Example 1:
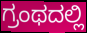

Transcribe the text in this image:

ಗ್ರಂಥದಲ್ಲಿ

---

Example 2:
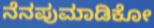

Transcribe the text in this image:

ನೆನಪುಮಾಡಿಕೋ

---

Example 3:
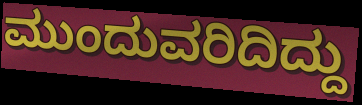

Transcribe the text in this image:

ಮುಂದುವರಿದಿದ್ದು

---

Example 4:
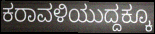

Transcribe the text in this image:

ಕರಾವಳಿಯುದ್ದಕ್ಕೂ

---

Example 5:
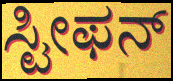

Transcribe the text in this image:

ಸ್ಟೀಫನ್